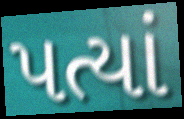
પત્યાં